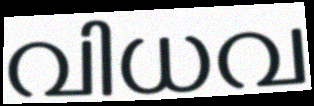
വിധവ